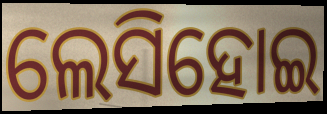
ଲେସିହୋଇ